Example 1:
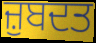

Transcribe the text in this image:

ਜ਼ੁਬਦਤ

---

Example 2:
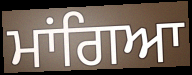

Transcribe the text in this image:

ਮਾਂਗਿਆ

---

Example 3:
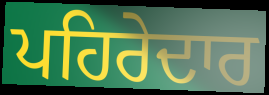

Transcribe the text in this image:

ਪਹਿਰੇਦਾਰ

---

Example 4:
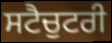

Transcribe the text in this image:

ਸਟੈਚੁਟਰੀ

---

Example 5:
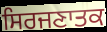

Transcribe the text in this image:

ਸਿਰਜਣਾਤਕ